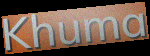
Khuma